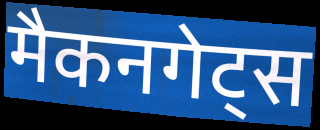
मैकनगेट्स